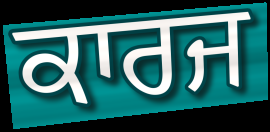
ਕਾਰਜ